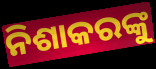
ନିଶାକରଙ୍କୁ